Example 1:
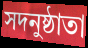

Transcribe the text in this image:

সদনুষ্ঠাতা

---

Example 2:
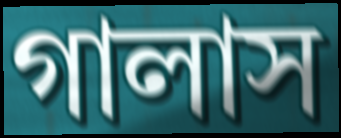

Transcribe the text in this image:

গালাস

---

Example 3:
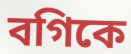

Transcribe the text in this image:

বগিকে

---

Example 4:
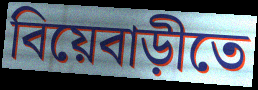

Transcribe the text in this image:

বিয়েবাড়ীতে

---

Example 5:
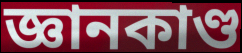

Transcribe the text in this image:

জ্ঞানকাণ্ড